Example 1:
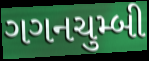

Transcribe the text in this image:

ગગનચુમ્બી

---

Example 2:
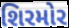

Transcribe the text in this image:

શિરમોર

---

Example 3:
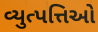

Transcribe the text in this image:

વ્યુત્પત્તિઓ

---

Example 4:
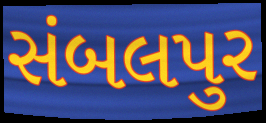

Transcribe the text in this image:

સંબલપુર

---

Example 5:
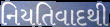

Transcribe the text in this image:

નિયતિવાદથી